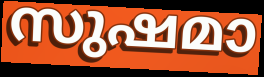
സുഷമാ